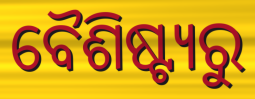
ବୈଶିଷ୍ଟ୍ୟରୁ